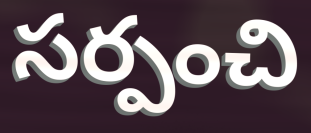
సర్పంచి